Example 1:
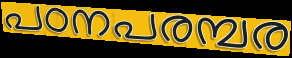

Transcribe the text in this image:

പഠനപരമ്പര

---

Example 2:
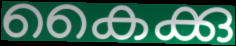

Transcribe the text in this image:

കൈക്കു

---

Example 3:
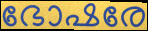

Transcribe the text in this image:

ഭോഷരേ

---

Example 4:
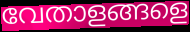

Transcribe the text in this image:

വേതാളങ്ങളെ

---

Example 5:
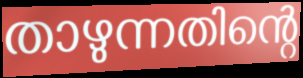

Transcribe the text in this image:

താഴുന്നതിന്റെ